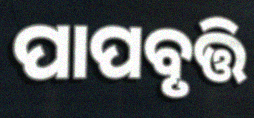
ପାପବୃତ୍ତି